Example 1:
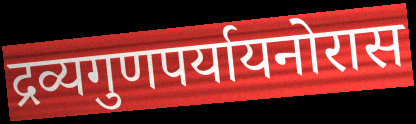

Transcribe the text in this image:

द्रव्यगुणपर्यायनोरास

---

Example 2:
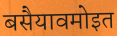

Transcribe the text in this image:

बसैयावमोइत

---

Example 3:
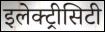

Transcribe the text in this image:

इलेक्ट्रीसिटी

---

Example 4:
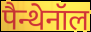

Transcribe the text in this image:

पैन्थेनॉल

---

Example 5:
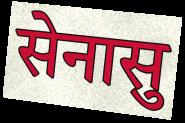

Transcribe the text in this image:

सेनासु